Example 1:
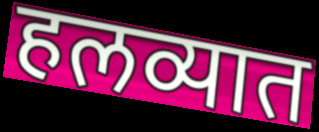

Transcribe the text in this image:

हलव्यात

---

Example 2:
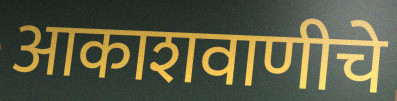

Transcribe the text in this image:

आकाशवाणीचे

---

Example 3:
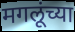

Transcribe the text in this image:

मगलूंच्या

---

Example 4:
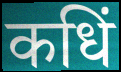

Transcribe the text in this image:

कधिं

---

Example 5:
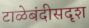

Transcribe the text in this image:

टाळेबंदीसदृश